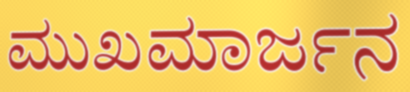
ಮುಖಮಾರ್ಜನ